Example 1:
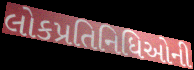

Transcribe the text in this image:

લોકપ્રતિનિધિઓની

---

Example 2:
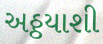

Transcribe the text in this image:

અઠ્ઠયાશી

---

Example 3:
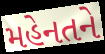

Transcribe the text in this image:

મહેનતને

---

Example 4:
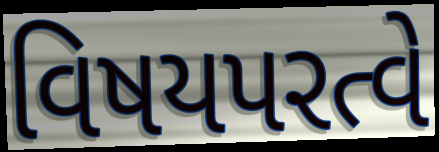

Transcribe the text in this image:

વિષયપરત્વે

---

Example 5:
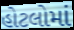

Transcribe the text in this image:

હોટલોમાં